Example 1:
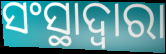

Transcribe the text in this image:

ସଂସ୍ଥାଦ୍ଵାରା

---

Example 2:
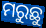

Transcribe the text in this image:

ମରୁଛୁ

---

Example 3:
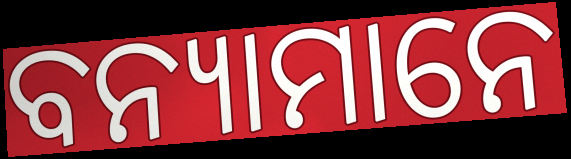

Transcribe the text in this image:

ବନ୍ୟାମାନେ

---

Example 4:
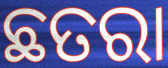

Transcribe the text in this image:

ଛତରା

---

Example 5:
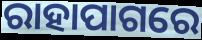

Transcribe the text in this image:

ରାହାପାଗରେ